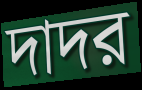
দাদর